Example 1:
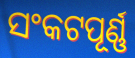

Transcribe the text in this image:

ସଂକଟପୂର୍ଣ୍ଣ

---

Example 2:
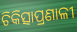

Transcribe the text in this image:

ଚିକିତ୍ସାପ୍ରଣାଳୀ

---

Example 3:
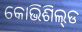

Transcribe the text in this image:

କୋଭିଶିଲ୍‌ଡ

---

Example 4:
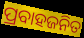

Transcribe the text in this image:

ପ୍ରବାହଜନିତ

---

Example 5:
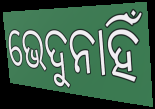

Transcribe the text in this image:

ଭେଦୁନାହିଁ